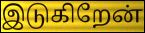
இடுகிறேன்